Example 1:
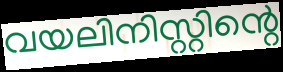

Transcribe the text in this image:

വയലിനിസ്റ്റിന്റെ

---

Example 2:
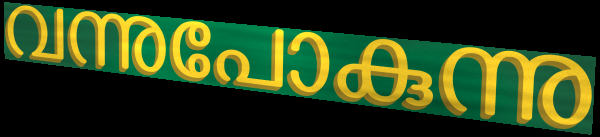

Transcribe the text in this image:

വന്നുപോകുന്നു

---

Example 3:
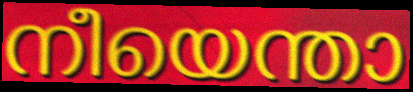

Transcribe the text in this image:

നീയെന്താ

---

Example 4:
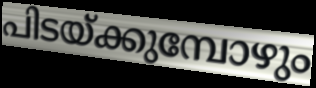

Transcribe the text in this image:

പിടയ്ക്കുമ്പോഴും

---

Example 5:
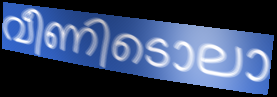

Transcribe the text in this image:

വീണിടൊലാ